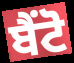
ਬੈਂਟੋ